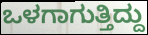
ಒಳಗಾಗುತ್ತಿದ್ದು